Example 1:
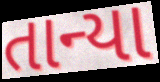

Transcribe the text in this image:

તાન્યા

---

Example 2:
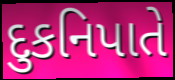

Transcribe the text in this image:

દુકનિપાતે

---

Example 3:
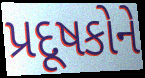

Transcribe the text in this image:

પ્રદૂષકોને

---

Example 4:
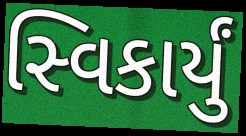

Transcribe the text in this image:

સ્વિકાર્યું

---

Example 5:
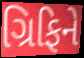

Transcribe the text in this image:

ગ્રિફિને